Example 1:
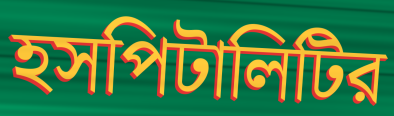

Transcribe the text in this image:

হসপিটালিটির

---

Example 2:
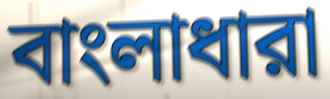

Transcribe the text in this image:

বাংলাধারা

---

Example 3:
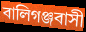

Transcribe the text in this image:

বালিগঞ্জবাসী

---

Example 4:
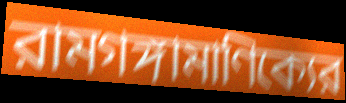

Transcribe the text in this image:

রামগঙ্গামাণিক্যের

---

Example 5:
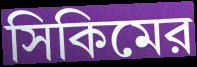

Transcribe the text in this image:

সিকিমের